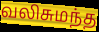
வலிசுமந்த